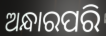
ଅନ୍ଧାରପରି